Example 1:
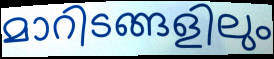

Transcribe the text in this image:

മാറിടങ്ങളിലും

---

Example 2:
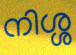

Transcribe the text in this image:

നിശ്ശ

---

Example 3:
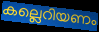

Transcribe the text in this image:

കല്ലെറിയണം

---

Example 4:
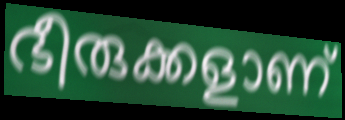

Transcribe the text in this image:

ഭീരുക്കളാണ്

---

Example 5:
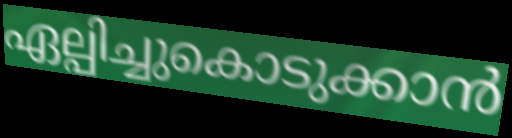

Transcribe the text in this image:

ഏല്പിച്ചുകൊടുക്കാൻ